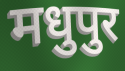
मधुपुर